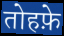
तोहफ़े